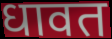
धावत